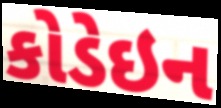
કોડેઇન